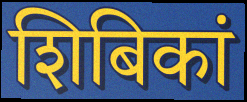
शिबिकां